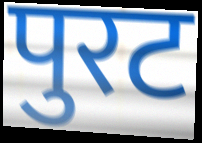
पुरट